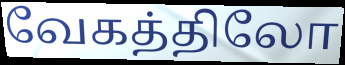
வேகத்திலோ